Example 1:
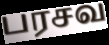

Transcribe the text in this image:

பரசவ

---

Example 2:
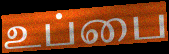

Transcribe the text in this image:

உப்பை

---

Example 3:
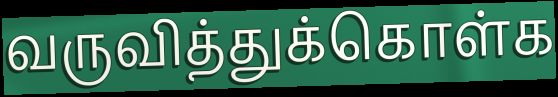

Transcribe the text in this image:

வருவித்துக்கொள்க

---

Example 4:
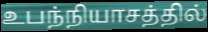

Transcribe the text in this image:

உபந்நியாசத்தில்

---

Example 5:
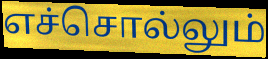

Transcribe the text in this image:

எச்சொல்லும்